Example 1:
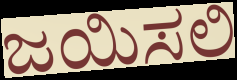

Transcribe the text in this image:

ಜಯಿಸಲಿ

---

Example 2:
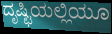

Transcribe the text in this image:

ದೃಷ್ಟಿಯಲ್ಲಿಯೂ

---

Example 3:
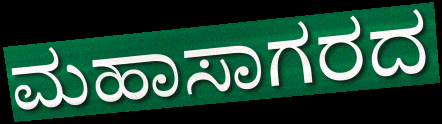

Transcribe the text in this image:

ಮಹಾಸಾಗರದ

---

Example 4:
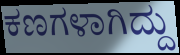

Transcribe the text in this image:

ಕಣಗಳಾಗಿದ್ದು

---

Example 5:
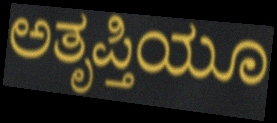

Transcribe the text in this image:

ಅತೃಪ್ತಿಯೂ